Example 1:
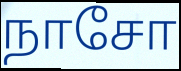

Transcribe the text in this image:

நாசோ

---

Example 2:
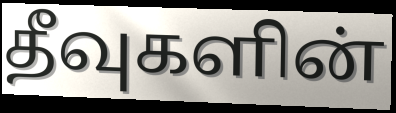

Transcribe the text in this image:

தீவுகளின்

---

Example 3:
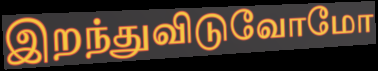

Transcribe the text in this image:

இறந்துவிடுவோமோ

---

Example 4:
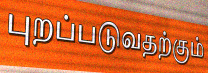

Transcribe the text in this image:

புறப்படுவதற்கும்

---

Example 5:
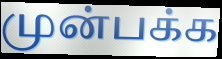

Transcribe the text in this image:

முன்பக்க